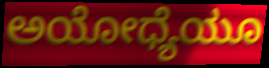
ಅಯೋಧ್ಯೆಯೂ